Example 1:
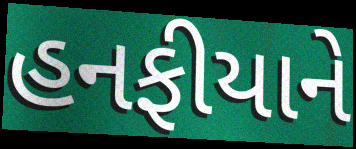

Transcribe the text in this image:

હનફીયાને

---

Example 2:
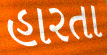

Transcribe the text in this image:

હારતા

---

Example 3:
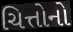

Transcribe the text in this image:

ચિત્તોનો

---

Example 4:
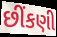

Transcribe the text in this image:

છીંકણી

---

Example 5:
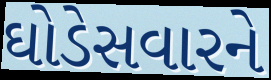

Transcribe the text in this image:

ઘોડેસવારને